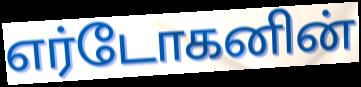
எர்டோகனின்